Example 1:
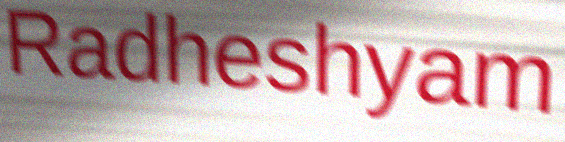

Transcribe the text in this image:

Radheshyam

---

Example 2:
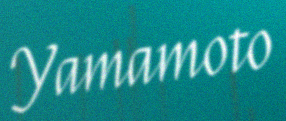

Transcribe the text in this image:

Yamamoto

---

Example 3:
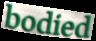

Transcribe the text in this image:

bodied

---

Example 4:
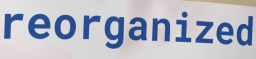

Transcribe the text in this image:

reorganized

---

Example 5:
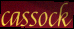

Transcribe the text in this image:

cassock